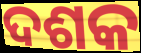
ଦଶକ